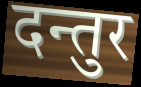
दन्तुर